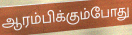
ஆரம்பிக்கும்போது